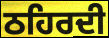
ਠਹਿਰਦੀ